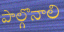
పాల్గొనాలి